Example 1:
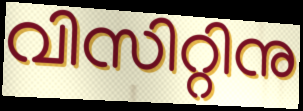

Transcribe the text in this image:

വിസിറ്റിനു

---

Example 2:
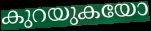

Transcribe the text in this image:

കുറയുകയോ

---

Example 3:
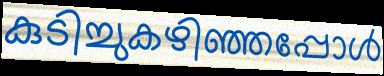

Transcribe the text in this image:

കുടിച്ചുകഴിഞ്ഞപ്പോൾ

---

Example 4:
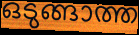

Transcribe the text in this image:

ഒടുങ്ങാത്ത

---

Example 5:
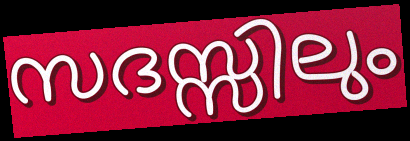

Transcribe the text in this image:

സദസ്സിലും